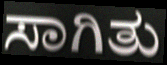
ಸಾಗಿತು